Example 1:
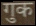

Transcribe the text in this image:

गुक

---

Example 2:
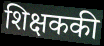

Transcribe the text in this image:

शिक्षककी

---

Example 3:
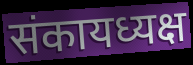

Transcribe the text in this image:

संकायध्यक्ष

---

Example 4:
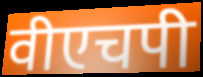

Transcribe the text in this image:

वीएचपी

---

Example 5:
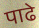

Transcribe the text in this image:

पाढे